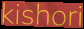
kishori